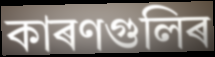
কাৰণগুলিৰ